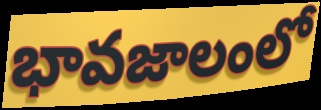
భావజాలంలో